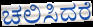
ಚಲಿಸಿದರೆ